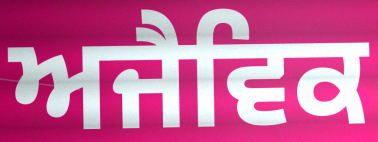
ਅਜੈਵਿਕ